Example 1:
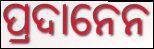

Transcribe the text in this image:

ପ୍ରଦାନେନ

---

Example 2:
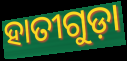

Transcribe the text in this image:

ହାତୀଗୁଡ଼ା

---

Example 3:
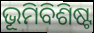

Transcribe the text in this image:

ଭୂମିବିଶିଷ୍ଟ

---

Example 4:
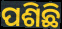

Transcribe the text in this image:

ପଶିଛି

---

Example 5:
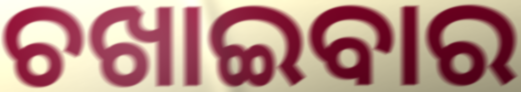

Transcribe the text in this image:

ଚଖାଇବାର